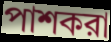
পাশকরা